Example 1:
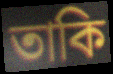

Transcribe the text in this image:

তাকি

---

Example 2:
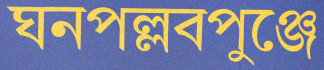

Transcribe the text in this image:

ঘনপল্লবপুঞ্জে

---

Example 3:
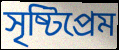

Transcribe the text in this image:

সৃষ্টিপ্রেম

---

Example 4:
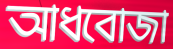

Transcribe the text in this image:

আধবোজা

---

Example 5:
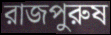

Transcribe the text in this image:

রাজপুরুষ